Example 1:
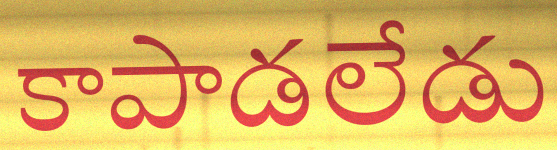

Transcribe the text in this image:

కాపాడలేడు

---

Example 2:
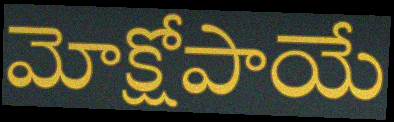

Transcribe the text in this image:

మోక్షోపాయే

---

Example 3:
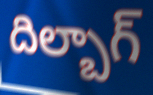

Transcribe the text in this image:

దిల్బాగ్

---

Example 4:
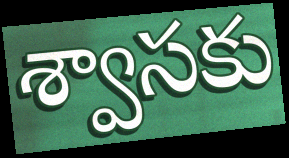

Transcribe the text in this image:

శ్వాసకు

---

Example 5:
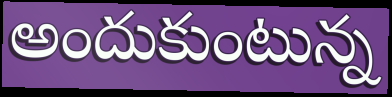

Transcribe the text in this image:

అందుకుంటున్న